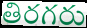
తిరగరు